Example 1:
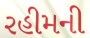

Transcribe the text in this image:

રહીમની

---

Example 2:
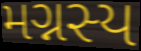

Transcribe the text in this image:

મગ્નસ્ય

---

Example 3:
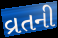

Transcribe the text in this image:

વ્રતની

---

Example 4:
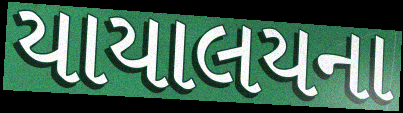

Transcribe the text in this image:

યાયાલયના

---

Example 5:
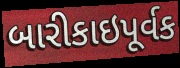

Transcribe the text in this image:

બારીકાઇપૂર્વક